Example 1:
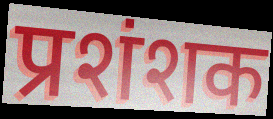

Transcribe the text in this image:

प्रशंशक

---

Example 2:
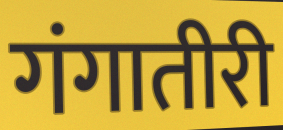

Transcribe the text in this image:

गंगातीरी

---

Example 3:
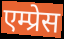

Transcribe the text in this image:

एम्प्रेस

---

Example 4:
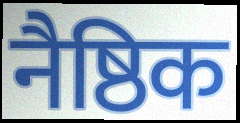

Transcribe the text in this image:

नैष्ठिक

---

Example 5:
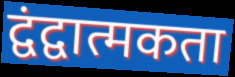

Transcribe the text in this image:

द्वंद्वात्मकता